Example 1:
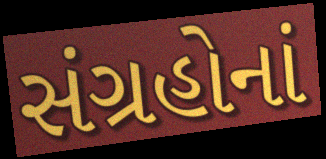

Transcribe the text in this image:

સંગ્રહોનાં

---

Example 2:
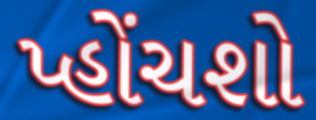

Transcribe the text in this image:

પ્હોંચશો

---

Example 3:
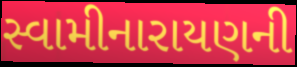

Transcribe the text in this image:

સ્વામીનારાયણની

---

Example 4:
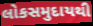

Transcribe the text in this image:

લોકસમુદાયથી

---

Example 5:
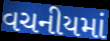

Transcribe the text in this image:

વચનીયમાં